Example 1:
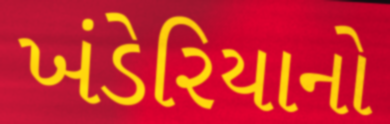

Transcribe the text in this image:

ખંડેરિયાનો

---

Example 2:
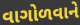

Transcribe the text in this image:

વાગોળવાને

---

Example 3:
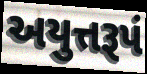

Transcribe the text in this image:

અયુત્તરૂપં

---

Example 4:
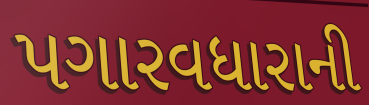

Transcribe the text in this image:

પગારવધારાની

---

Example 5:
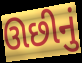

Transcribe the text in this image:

ઊછીનું